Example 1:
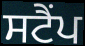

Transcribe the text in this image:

ਸਟੈਂਪ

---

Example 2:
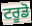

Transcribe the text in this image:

ਟਰੂਡੋ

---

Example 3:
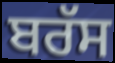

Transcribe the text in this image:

ਬਰੱਸ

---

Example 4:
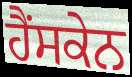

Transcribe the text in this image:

ਹੈਂਸਕੇਨ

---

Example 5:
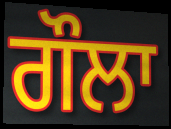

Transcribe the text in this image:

ਗੌਲਾ